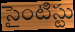
సైంటిస్టు